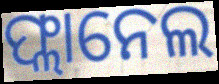
ଫ୍ଲାନେଲ